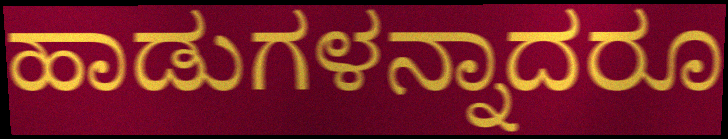
ಹಾಡುಗಳನ್ನಾದರೂ